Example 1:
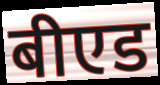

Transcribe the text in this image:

बीएड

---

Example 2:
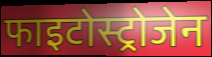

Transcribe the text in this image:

फाइटोस्ट्रोजेन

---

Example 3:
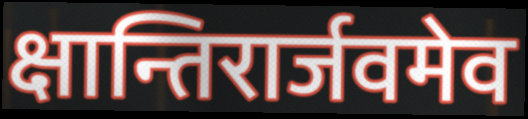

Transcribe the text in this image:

क्षान्तिरार्जवमेव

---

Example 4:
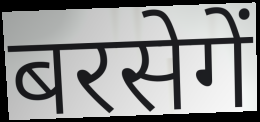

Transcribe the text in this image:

बरसेगें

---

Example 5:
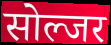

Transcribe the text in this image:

सोल्जर